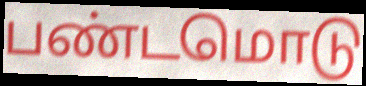
பண்டமொடு